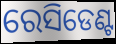
ରେସିଡେଣ୍ଟ